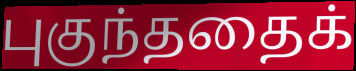
புகுந்ததைக்